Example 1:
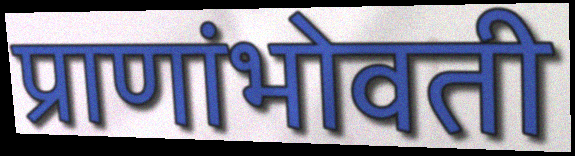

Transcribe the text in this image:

प्राणांभोवती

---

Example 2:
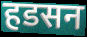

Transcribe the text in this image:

हडसन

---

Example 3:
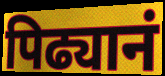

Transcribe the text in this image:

पिढ्यानं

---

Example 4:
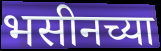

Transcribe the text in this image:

भसीनच्या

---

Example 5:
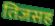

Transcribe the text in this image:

तिजसह